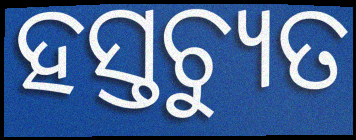
ହସ୍ତଚ୍ୟୁତ